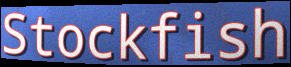
Stockfish